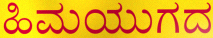
ಹಿಮಯುಗದ